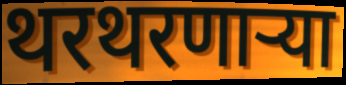
थरथरणाऱ्या